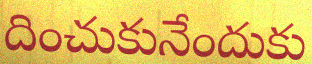
దించుకునేందుకు